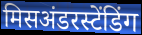
मिसअंडरस्टेंडिंग